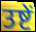
उष्टें